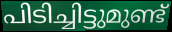
പിടിച്ചിട്ടുമുണ്ട്